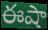
ఈషా